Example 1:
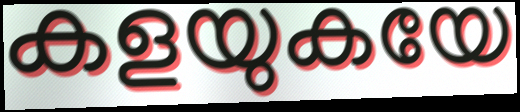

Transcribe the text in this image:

കളയുകയേ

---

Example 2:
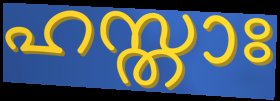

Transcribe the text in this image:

ഹസ്താഃ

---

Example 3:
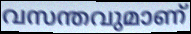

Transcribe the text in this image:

വസന്തവുമാണ്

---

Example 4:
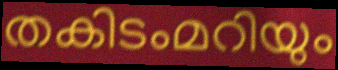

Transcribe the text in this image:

തകിടംമറിയും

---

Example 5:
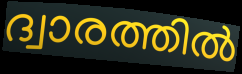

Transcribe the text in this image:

ദ്വാരത്തിൽ